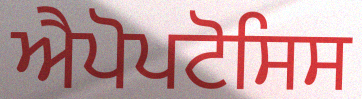
ਐਪੋਪਟੋਸਿਸ